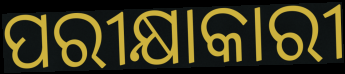
ପରୀକ୍ଷାକାରୀ